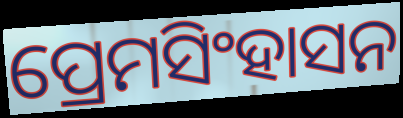
ପ୍ରେମସିଂହାସନ